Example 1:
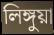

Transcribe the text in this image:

লিঙ্গুয়া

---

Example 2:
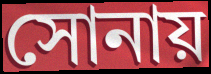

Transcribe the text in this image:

সোনায়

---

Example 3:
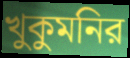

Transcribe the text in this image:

খুকুমনির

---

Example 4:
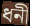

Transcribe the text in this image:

ধনী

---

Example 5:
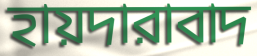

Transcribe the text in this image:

হায়দারাবাদ